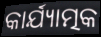
କାର୍ଯ୍ୟାତ୍ମକ